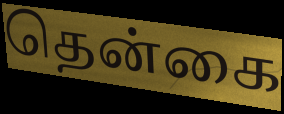
தென்கை